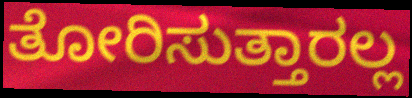
ತೋರಿಸುತ್ತಾರಲ್ಲ